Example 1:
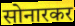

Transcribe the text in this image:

सोनारकर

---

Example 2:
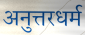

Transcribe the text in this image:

अनुत्तरधर्म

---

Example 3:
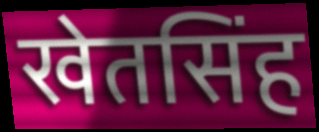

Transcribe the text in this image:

खेतसिंह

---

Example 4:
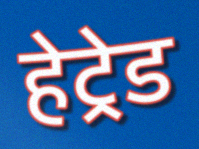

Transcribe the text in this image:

हेट्रेड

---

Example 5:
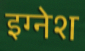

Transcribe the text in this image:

इग्नेश